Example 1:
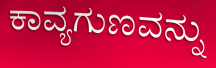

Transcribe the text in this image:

ಕಾವ್ಯಗುಣವನ್ನು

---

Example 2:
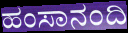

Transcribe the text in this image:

ಹಂಸಾನಂದಿ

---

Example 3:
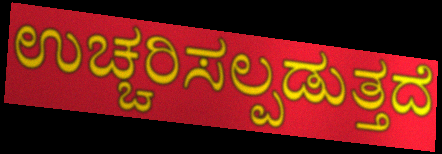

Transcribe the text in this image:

ಉಚ್ಚರಿಸಲ್ಪಡುತ್ತದೆ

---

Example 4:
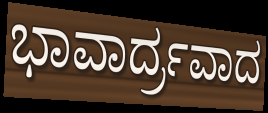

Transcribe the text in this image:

ಭಾವಾರ್ದ್ರವಾದ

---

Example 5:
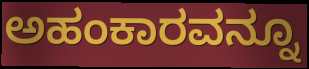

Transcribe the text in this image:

ಅಹಂಕಾರವನ್ನೂ